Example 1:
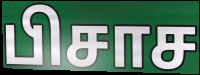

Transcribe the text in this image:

பிசாச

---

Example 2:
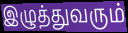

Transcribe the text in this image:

இழுத்துவரும்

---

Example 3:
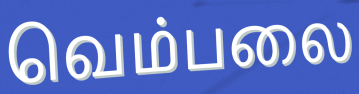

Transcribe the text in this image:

வெம்பலை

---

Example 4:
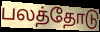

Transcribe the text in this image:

பலத்தோடு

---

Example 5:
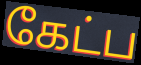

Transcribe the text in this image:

கேட்ப